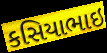
કસિયાભાઇ